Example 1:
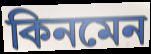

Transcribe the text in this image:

কিনমেন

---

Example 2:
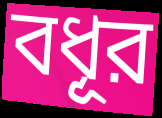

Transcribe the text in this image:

বধূর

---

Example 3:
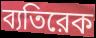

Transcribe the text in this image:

ব্যতিরেক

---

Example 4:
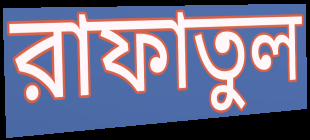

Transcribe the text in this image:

রাফাতুল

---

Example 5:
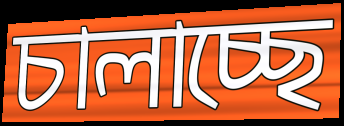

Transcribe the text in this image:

চালাচ্ছে